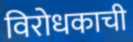
विरोधकाची